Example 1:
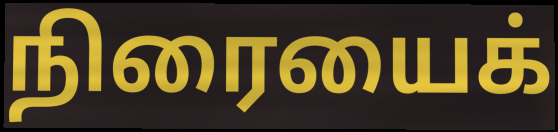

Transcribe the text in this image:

நிரையைக்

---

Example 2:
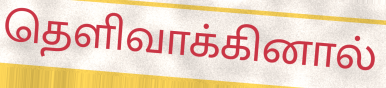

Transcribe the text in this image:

தெளிவாக்கினால்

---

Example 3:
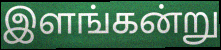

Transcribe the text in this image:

இளங்கன்று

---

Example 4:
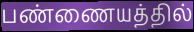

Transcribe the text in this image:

பண்ணையத்தில்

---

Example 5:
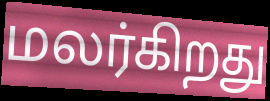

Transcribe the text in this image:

மலர்கிறது